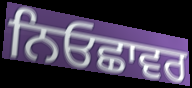
ਨਿਓਛਾਵਰ